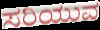
ಸರಿಯುವ